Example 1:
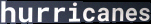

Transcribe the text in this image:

hurricanes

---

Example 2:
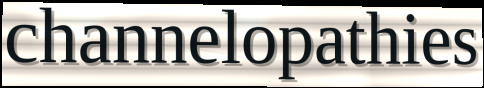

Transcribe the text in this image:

channelopathies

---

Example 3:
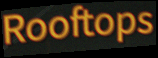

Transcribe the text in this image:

Rooftops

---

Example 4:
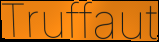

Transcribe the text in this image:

Truffaut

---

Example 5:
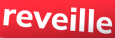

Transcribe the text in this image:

reveille